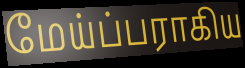
மேய்ப்பராகிய